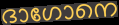
ദാഗോനെ